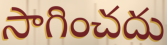
సాగించదు